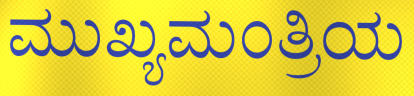
ಮುಖ್ಯಮಂತ್ರಿಯ